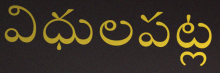
విధులపట్ల